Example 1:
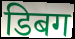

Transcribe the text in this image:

डिबग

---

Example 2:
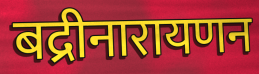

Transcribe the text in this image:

बद्रीनारायणन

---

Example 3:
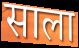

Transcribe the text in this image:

साला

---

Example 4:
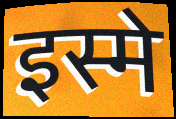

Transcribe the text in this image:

इस्मे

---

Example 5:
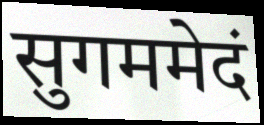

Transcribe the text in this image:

सुगममेदं